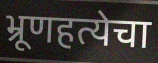
भ्रूणहत्येचा